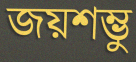
জয়শম্ভু